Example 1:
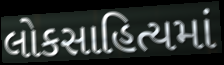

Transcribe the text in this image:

લોકસાહિત્યમાં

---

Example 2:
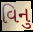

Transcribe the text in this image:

વિનુ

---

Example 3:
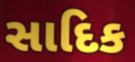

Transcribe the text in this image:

સાદિક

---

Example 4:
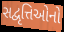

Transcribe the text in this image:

સદ્વૃત્તિઓનો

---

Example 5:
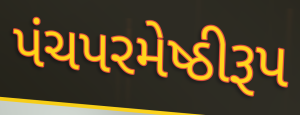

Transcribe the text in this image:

પંચપરમેષ્ઠીરૂપ